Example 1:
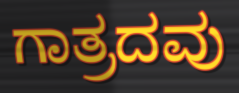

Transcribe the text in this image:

ಗಾತ್ರದವು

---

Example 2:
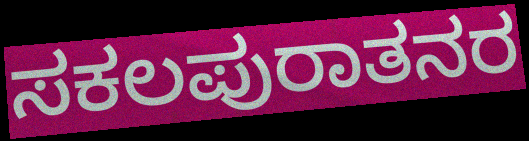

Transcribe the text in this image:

ಸಕಲಪುರಾತನರ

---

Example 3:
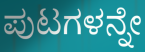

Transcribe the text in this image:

ಪುಟಗಳನ್ನೇ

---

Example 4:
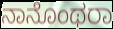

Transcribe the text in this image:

ನಾನೊಂಥರಾ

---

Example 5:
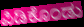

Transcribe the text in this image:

ಪಿಡಿಕೊಂಡು